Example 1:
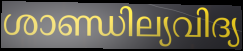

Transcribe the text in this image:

ശാണ്ഡില്യവിദ്യ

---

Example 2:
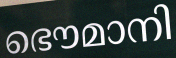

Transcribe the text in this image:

ഭൌമാനി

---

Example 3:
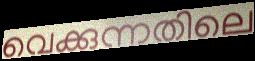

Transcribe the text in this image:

വെക്കുന്നതിലെ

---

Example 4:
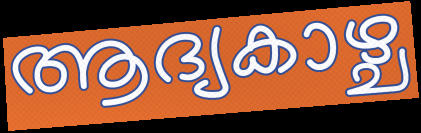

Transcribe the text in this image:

ആദ്യകാഴ്ച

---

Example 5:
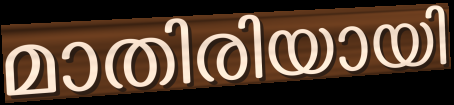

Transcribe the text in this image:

മാതിരിയായി